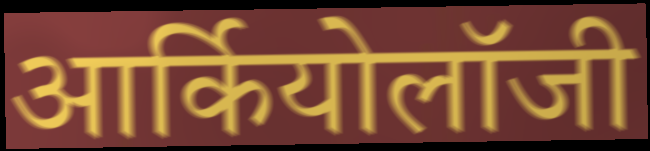
आर्कियोलॉजी